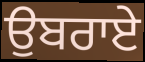
ਉਬਰਾਏ